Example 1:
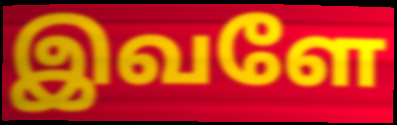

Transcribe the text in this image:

இவளே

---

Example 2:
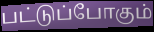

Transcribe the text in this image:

பட்டுப்போகும்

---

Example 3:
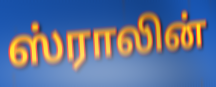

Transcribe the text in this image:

ஸ்ராலின்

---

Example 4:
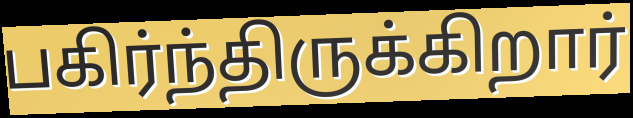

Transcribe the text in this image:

பகிர்ந்திருக்கிறார்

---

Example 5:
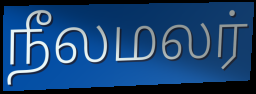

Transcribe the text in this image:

நீலமலர்